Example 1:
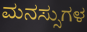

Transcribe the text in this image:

ಮನಸ್ಸುಗಳ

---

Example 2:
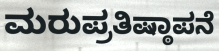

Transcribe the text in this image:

ಮರುಪ್ರತಿಷ್ಠಾಪನೆ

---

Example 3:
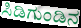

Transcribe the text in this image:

ಸಿಡಿಗುಂಡಿನ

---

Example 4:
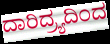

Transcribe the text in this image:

ದಾರಿದ್ರ್ಯದಿಂದ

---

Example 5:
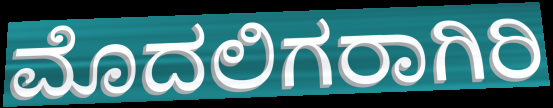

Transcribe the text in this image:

ಮೊದಲಿಗರಾಗಿರಿ